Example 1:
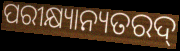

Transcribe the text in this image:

ପରୀକ୍ଷ୍ୟାନ୍ୟତରଦ୍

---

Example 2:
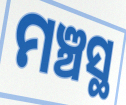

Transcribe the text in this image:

ମଞ୍ଚସ୍ଥ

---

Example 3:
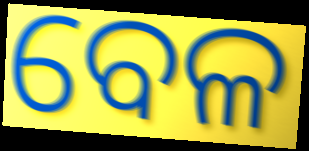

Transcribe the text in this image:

ବେଳ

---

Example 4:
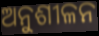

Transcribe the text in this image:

ଅନୁଶୀଳନ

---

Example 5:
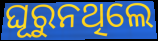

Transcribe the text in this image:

ଘୂରୁନଥିଲେ